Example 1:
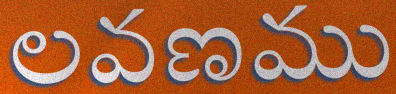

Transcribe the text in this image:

లవణము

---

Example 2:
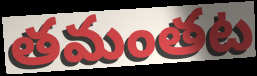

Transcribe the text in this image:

తమంతట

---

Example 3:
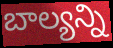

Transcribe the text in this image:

బాల్యన్ని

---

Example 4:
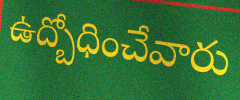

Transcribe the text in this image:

ఉద్బోధించేవారు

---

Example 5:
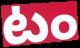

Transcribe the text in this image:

టం